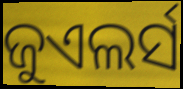
ଜୁଏଲର୍ସ